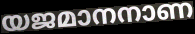
യജമാനനാണ